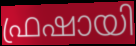
ഫ്രഷായി